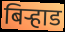
बिऱ्हाड